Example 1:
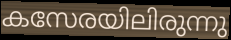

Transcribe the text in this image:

കസേരയിലിരുന്നു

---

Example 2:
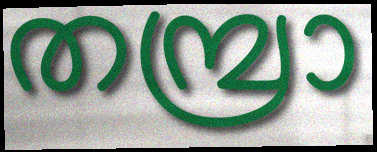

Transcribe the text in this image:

തമ്പ്രാ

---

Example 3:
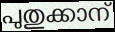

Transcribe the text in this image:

പുതുക്കാന്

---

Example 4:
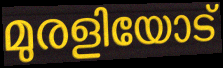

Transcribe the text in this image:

മുരളിയോട്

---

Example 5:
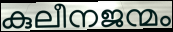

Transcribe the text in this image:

കുലീനജന്മം